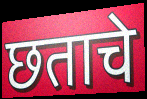
छताचे